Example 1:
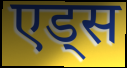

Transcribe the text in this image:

एड्स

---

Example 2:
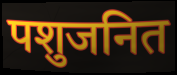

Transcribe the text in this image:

पशुजनित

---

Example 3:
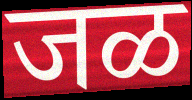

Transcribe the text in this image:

जळ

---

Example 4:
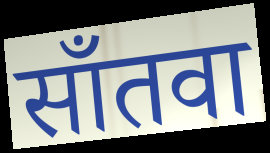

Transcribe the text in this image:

साँतवा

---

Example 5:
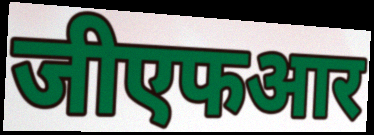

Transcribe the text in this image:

जीएफआर